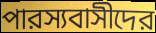
পারস্যবাসীদের